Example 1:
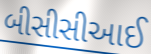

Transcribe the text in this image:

બીસીસીઆઈ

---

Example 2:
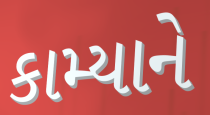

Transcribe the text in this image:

કામ્યાને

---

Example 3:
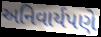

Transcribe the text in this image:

અનિવાર્યપણે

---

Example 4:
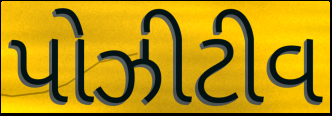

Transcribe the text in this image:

પોઝીટીવ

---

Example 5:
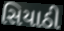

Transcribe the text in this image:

સિયાઠી